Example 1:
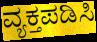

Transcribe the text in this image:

ವ್ಯಕ್ತಪಡಿಸಿ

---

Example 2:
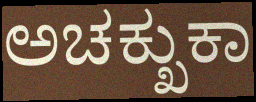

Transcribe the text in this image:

ಅಚಕ್ಖುಕಾ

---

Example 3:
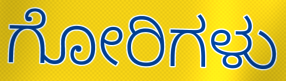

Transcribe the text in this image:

ಗೋರಿಗಳು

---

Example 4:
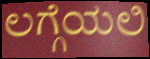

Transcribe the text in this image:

ಲಗ್ಗೆಯಲಿ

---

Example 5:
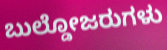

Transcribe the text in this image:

ಬುಲ್ಡೋಜರುಗಳು